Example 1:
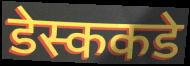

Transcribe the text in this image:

डेस्ककडे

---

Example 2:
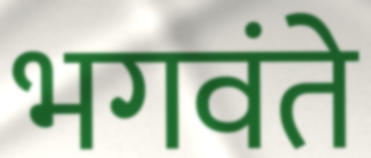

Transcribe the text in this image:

भगवंते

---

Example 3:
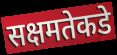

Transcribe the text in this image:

सक्षमतेकडे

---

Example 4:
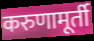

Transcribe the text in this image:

करुणामूर्ती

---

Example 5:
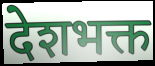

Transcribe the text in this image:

देशभक्त